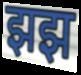
झझ